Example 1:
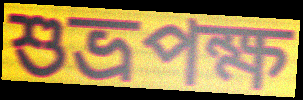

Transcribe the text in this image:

শুভ্রপক্ষ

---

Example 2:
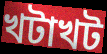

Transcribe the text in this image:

খটাখট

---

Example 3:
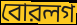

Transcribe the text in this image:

বোরলগ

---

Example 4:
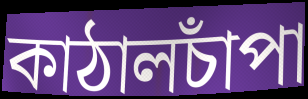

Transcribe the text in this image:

কাঠালচাঁপা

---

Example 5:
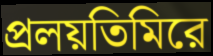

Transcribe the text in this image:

প্রলয়তিমিরে